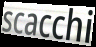
scacchi